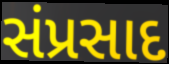
સંપ્રસાદ